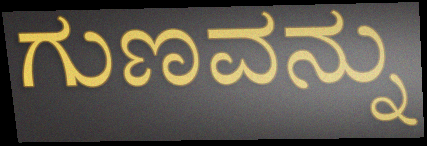
ಗುಣವನ್ನು